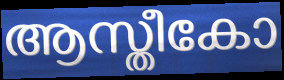
ആസ്തീകോ